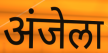
अंजेला